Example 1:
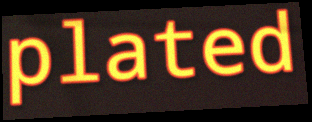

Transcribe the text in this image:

plated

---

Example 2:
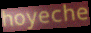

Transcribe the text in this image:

hoyeche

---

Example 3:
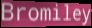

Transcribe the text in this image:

Bromiley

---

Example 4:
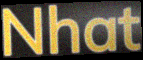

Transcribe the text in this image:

Nhat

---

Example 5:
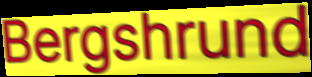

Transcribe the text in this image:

Bergshrund